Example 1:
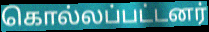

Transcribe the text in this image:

கொல்லப்பட்டனர்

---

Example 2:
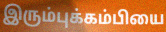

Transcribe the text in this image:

இரும்புக்கம்பியை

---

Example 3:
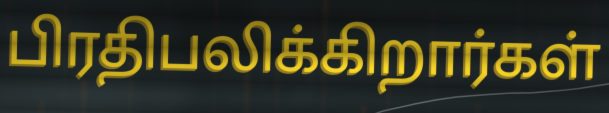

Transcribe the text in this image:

பிரதிபலிக்கிறார்கள்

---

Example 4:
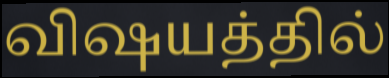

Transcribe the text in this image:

விஷயத்தில்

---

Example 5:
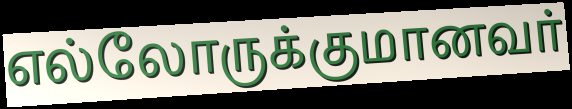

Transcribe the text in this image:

எல்லோருக்குமானவர்